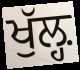
ਖੁੱਲ਼੍ਹ